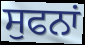
ਸੁਫਨਾਂ